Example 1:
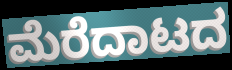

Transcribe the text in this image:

ಮೆರೆದಾಟದ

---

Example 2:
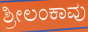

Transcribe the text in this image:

ಶ್ರೀಲಂಕಾವು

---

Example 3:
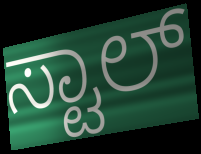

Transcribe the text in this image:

ಸ್ಟಾಲ್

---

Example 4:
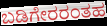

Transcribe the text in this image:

ಬಡಿಗೇರರಂತಹ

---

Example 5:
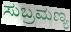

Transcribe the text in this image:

ಸುಬ್ರಮಣ್ಯ